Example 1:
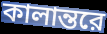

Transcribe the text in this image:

কালান্তরে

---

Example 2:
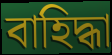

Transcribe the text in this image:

বাহিদ্ধা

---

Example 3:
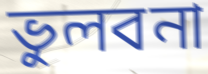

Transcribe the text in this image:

ভুলবনা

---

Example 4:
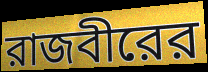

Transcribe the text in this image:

রাজবীরের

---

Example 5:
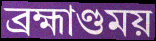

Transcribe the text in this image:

ব্রহ্মাণ্ডময়